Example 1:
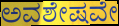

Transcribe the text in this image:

ಅವಶೇಷವೇ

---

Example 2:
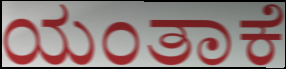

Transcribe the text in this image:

ಯಂತಾಕೆ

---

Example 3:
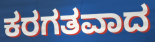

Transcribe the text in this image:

ಕರಗತವಾದ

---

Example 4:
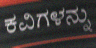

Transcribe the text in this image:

ಕವಿಗಳನ್ನು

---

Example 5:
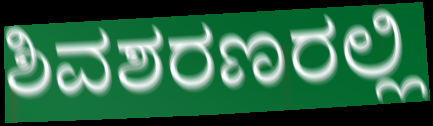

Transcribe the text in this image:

ಶಿವಶರಣರಲ್ಲಿ